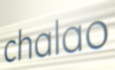
chalao